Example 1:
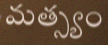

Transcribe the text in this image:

మత్స్యం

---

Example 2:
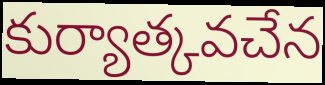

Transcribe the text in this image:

కుర్యాత్కవచేన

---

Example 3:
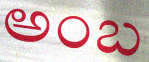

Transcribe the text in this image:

అంబ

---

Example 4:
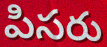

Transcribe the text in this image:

పిసరు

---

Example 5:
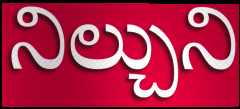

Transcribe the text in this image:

నిల్చుని